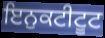
ਇਨੁਕਟੀਟੂਟ